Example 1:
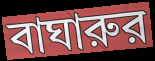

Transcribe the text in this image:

বাঘারুর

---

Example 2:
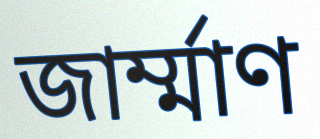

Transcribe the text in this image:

জার্ম্মাণ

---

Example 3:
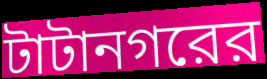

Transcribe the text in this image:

টাটানগরের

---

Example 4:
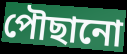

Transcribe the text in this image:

পৌছানো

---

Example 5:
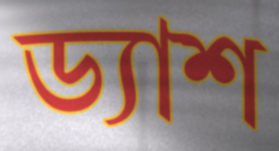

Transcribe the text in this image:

ড্যাশ